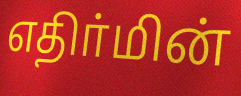
எதிர்மின்